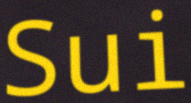
Sui